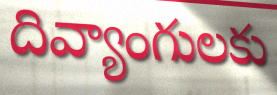
దివ్యాంగులకు